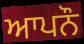
ਆਪਨੌ